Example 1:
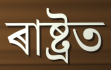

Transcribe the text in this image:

ৰাষ্ট্ৰত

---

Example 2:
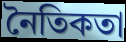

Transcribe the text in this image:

নৈতিকতা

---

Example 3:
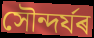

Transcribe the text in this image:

সৌন্দৰ্যৰ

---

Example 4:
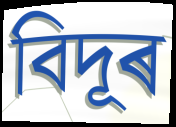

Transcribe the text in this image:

বিদূৰ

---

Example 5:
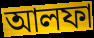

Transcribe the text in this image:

আলফা